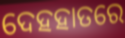
ଦେହହାତରେ